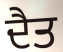
ਦੈਤ